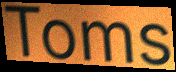
Toms